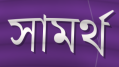
সামর্থ